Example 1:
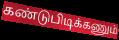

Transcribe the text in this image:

கண்டுபிடிக்கணும்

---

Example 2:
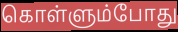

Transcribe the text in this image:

கொள்ளும்போது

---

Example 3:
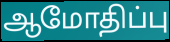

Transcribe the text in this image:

ஆமோதிப்பு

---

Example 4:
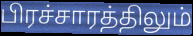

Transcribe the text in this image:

பிரச்சாரத்திலும்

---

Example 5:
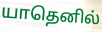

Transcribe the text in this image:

யாதெனில்